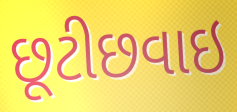
છૂટીછવાઇ